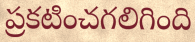
ప్రకటించగలిగింది